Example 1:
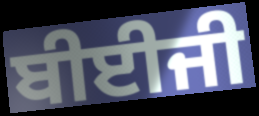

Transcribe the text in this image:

ਬੀਈਜੀ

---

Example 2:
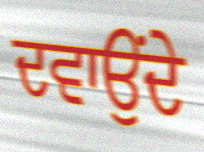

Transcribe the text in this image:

ਦਵਾਉਂਦੇ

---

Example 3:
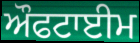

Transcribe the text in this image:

ਔਫਟਾਈਮ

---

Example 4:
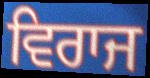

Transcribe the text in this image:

ਵਿਰਾਜ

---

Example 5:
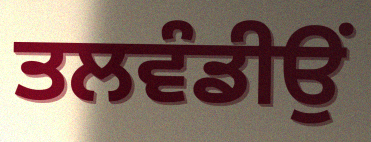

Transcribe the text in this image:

ਤਲਵੰਡੀਉਂ